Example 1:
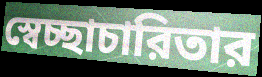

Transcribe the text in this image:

স্বেচ্ছাচারিতার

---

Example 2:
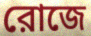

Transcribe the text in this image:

রোজে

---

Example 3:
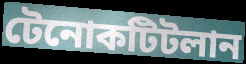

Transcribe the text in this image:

টেনোকটিটলান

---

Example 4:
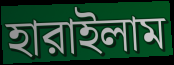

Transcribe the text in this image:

হারাইলাম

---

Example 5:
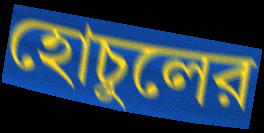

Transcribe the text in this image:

হোচুলের